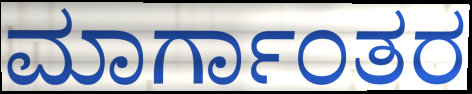
ಮಾರ್ಗಾಂತರ